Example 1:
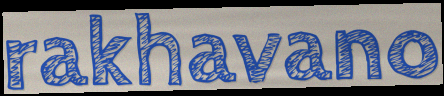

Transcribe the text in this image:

rakhavano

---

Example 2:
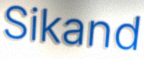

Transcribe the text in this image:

Sikand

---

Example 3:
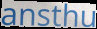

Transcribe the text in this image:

ansthu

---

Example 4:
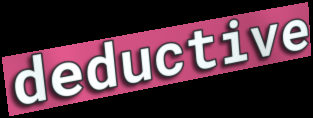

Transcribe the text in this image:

deductive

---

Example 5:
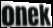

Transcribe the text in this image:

onek